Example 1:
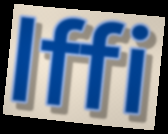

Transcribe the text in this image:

Iffi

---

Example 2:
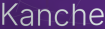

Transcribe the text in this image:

Kanche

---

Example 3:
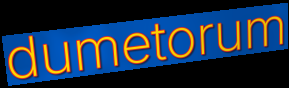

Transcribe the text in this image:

dumetorum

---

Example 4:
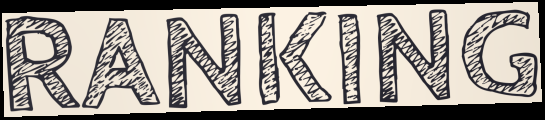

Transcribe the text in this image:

RANKING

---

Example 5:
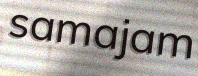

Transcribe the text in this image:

samajam